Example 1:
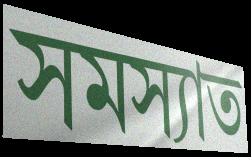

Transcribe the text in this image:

সমস্যাত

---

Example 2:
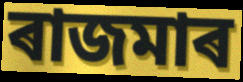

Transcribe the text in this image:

ৰাজমাৰ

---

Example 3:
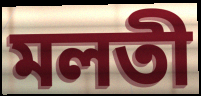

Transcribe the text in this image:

মলতী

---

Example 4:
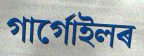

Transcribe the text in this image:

গাৰ্গোইলৰ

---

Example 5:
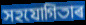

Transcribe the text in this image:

সহযোগিতাৰ